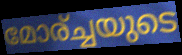
മോര്ച്ചയുടെ